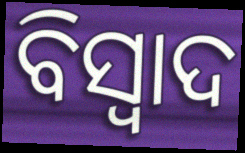
ବିସ୍ଵାଦ